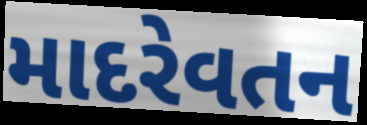
માદરેવતન